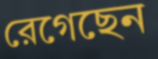
রেগেছেন